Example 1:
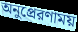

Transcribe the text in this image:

অনুপ্রেরণাময়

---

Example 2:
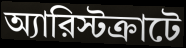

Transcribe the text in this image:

অ্যারিস্টক্রাটে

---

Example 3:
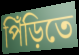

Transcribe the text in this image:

পিঁড়িতে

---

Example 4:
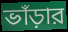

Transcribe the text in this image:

ভাঁড়ার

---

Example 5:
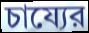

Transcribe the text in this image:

চায্যের